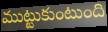
ముట్టుకుంటుంది